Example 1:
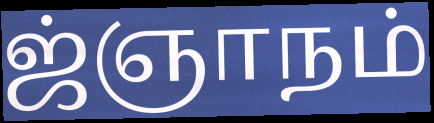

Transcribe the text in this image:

ஜ்ஞாநம்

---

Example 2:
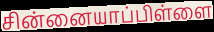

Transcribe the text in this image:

சின்னையாப்பிள்ளை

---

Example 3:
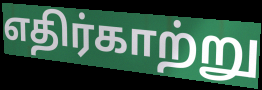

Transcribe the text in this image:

எதிர்காற்று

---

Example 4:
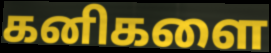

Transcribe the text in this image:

கனிகளை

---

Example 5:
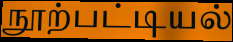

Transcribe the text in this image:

நூற்பட்டியல்